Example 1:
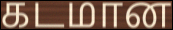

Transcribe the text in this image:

கடமான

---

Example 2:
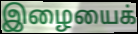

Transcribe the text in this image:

இழையைக்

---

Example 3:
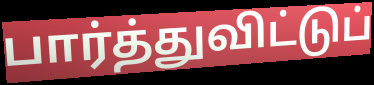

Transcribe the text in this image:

பார்த்துவிட்டுப்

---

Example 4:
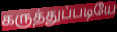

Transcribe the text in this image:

கருத்துப்படியே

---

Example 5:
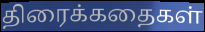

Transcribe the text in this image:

திரைக்கதைகள்